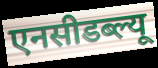
एनसीडब्ल्यू